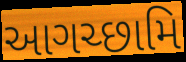
આગચ્છામિ